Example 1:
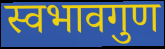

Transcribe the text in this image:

स्वभावगुण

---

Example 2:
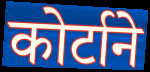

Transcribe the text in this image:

कोर्टाने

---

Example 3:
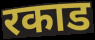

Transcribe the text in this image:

रकाड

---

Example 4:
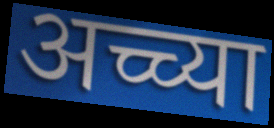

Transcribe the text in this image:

अच्च्या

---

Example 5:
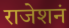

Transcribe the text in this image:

राजेशनं